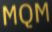
MQM